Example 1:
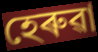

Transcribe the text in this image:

হেৰুৱা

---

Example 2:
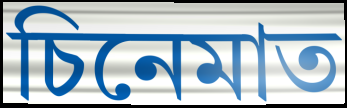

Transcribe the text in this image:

চিনেমাত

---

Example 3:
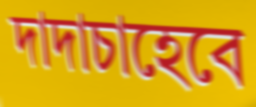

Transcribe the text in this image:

দাদাচাহেবে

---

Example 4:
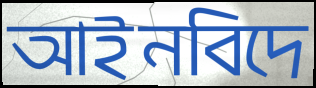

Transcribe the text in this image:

আইনবিদে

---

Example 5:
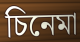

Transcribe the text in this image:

চিনেমা